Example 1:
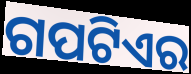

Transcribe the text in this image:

ଗପଟିଏର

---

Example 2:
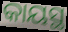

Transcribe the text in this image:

କାୟସ୍ଥ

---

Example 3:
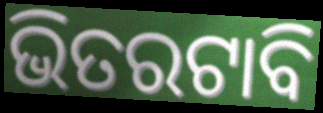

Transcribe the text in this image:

ଭିତରଟାବି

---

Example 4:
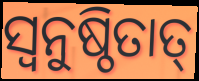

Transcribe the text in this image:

ସ୍ଵନୁଷ୍ଠିତାତ୍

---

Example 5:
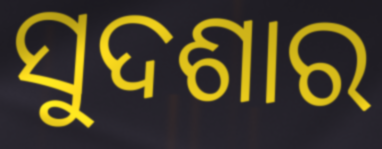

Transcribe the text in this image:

ସୁଦଶାର